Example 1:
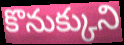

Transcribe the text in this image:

కొనుక్కుని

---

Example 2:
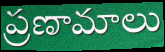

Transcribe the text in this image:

ప్రణామాలు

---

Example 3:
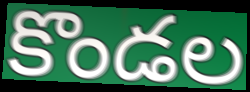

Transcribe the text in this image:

కొండల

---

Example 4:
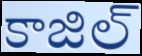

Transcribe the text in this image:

కాజిల్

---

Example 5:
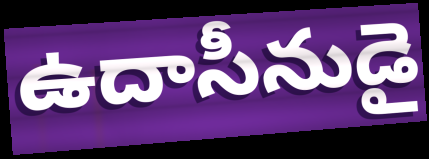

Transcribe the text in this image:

ఉదాసీనుడై